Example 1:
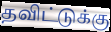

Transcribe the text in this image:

தவிட்டுக்கு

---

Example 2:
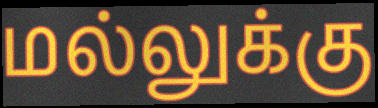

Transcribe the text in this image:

மல்லுக்கு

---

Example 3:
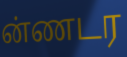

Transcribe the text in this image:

ன்ணடர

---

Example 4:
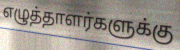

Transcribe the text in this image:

எழுத்தாளர்களுக்கு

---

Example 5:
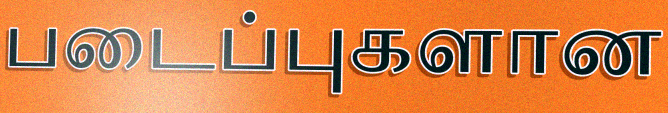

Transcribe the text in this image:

படைப்புகளான